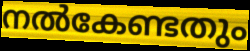
നൽകേണ്ടതും